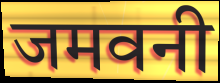
जमवनी